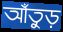
আঁতুড়